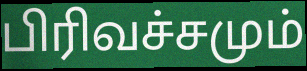
பிரிவச்சமும்